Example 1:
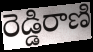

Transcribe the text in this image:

రెడ్డిరాణి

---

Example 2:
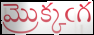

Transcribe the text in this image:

మ్రొక్కఁగ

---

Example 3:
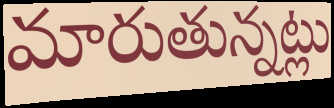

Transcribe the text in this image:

మారుతున్నట్లు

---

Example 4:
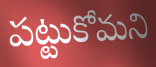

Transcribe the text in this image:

పట్టుకోమని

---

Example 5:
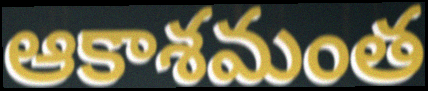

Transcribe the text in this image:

ఆకాశమంత